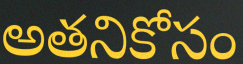
అతనికోసం